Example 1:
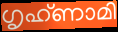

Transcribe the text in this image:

ഗൃഹ്ണാമി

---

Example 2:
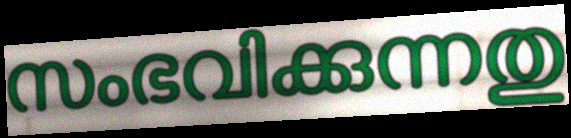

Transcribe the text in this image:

സംഭവിക്കുന്നതു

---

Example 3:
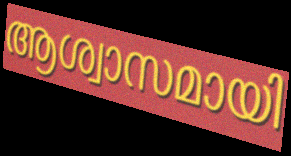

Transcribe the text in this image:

ആശ്വാസമായി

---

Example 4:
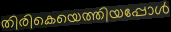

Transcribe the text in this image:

തിരികെയെത്തിയപ്പോൾ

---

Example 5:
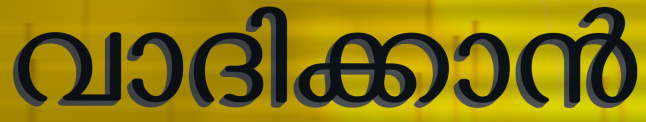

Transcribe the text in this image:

വാദിക്കാൻ